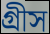
গ্রীস